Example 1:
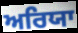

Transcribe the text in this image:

ਅਰਿਯਾ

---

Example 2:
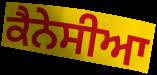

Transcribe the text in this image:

ਕੈਨੇਸੀਆ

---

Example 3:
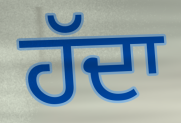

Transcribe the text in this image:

ਹੱਦਾ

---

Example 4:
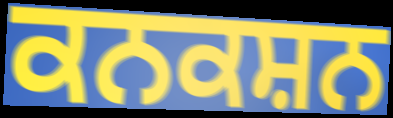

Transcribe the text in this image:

ਕਨਕਸ਼ਨ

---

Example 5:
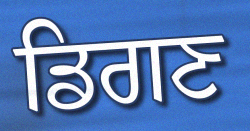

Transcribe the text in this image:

ਡਿਗਣ